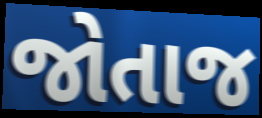
જોતાજ